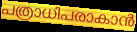
പത്രാധിപരാകാൻ